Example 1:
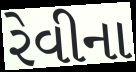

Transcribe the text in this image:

રેવીના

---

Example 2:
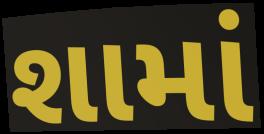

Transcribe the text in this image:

શામાં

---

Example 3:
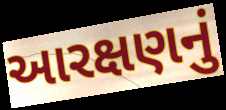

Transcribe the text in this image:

આરક્ષણનું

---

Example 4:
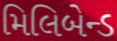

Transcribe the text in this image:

મિલિબેન્ડ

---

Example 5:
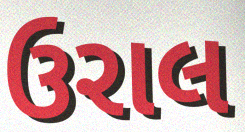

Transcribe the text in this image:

ઉરાલ